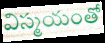
విస్మయంతో